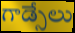
గాడ్సేలు